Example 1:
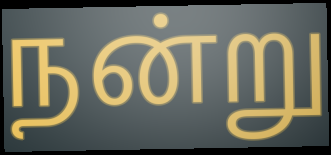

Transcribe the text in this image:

நன்று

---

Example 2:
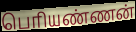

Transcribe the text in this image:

பெரியண்ணன்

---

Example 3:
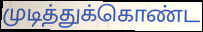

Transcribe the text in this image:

முடித்துக்கொண்ட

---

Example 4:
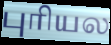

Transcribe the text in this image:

புரியல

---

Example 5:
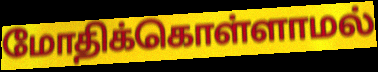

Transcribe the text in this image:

மோதிக்கொள்ளாமல்